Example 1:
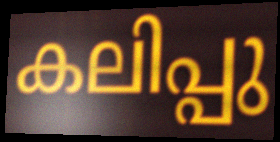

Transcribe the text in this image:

കലിപ്പു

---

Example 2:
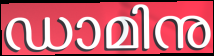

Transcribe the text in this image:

ഡാമിനു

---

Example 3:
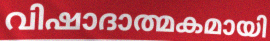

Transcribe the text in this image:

വിഷാദാത്മകമായി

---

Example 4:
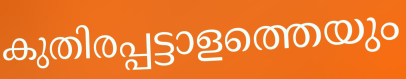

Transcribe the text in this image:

കുതിരപ്പട്ടാളത്തെയും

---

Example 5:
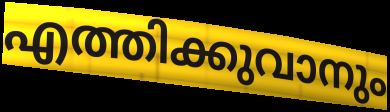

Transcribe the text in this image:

എത്തിക്കുവാനും